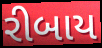
રીબાય